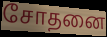
சோதனை